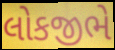
લોકજીભે